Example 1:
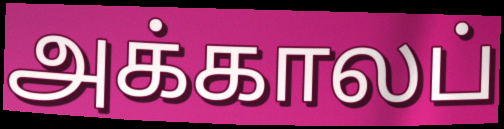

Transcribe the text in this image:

அக்காலப்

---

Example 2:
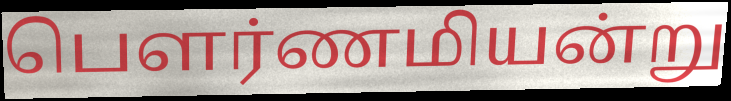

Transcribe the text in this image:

பெளர்ணமியன்று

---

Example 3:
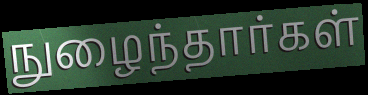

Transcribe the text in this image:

நுழைந்தார்கள்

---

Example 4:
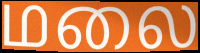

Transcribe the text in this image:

மலை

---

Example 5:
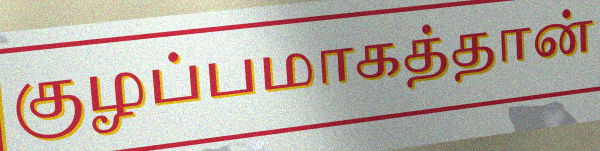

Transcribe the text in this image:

குழப்பமாகத்தான்